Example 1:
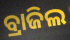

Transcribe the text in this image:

ବ୍ରାଜିଲ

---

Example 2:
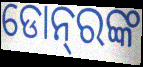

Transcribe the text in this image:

ଡୋନ୍‌ରଙ୍କ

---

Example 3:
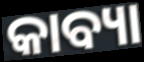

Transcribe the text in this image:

କାବ୍ୟା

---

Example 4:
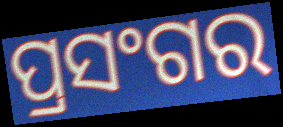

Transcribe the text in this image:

ପ୍ରସଂଗର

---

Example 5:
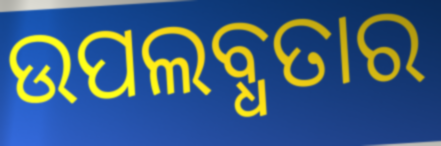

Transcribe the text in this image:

ଉପଲବ୍ଧତାର